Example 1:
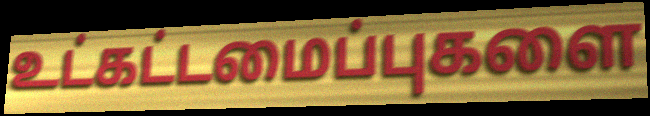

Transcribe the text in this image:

உட்கட்டமைப்புகளை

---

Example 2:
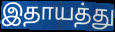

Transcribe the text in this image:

இதாயத்து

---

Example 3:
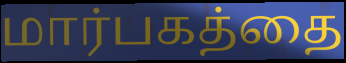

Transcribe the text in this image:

மார்பகத்தை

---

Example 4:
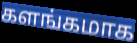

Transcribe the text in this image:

களங்கமாக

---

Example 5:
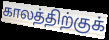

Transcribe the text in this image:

காலத்திற்குக்